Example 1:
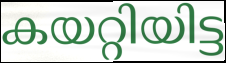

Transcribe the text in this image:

കയറ്റിയിട്ട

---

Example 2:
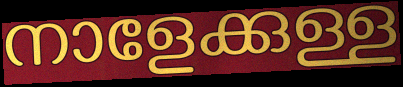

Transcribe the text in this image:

നാളേക്കുള്ള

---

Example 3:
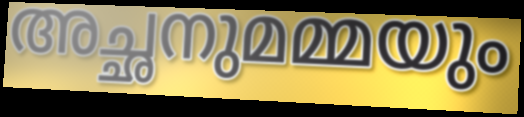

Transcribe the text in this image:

അച്ഛനുമമ്മയും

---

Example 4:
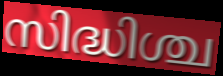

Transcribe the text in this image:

സിദ്ധിശ്ച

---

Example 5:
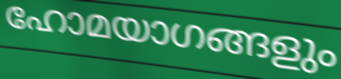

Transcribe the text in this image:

ഹോമയാഗങ്ങളും